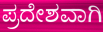
ಪ್ರದೇಶವಾಗಿ